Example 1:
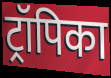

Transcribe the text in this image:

ट्रॉपिका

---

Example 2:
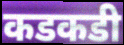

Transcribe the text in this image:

कडकडी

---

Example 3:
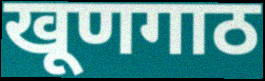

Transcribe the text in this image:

खूणगाठ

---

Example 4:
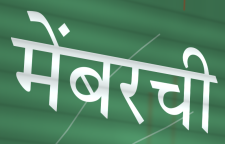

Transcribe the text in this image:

मेंबरची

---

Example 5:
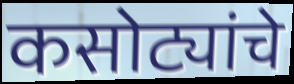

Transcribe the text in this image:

कसोट्यांचे